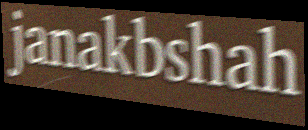
janakbshah